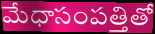
మేధాసంపత్తితో